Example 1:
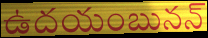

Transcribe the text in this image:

ఉదయంబునన్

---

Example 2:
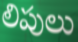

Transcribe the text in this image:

లిపులు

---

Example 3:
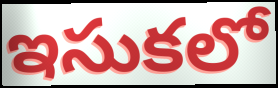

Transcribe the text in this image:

ఇసుకలో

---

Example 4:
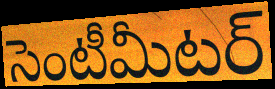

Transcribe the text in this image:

సెంటీమీటర్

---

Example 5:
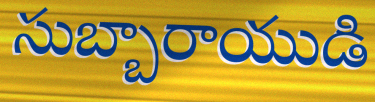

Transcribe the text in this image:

సుబ్బారాయుడి